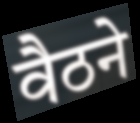
वैठने